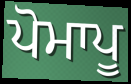
ਪੋਮਾਪੂ